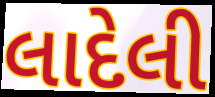
લાદેલી